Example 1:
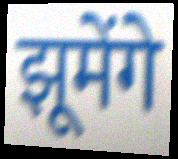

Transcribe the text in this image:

झूमेंगे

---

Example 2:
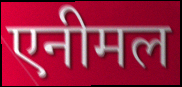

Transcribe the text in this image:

एनीमल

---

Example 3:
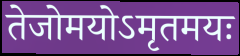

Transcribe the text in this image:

तेजोमयोऽमृतमयः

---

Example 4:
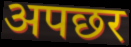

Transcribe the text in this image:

अपछर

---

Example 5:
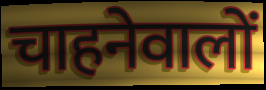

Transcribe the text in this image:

चाहनेवालों